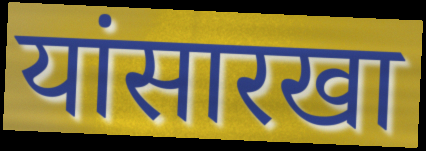
यांसारखा